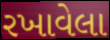
રખાવેલા